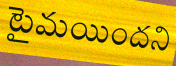
టైమయిందని